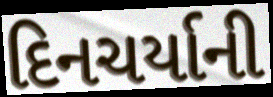
દિનચર્યાની